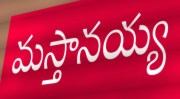
మస్తానయ్య